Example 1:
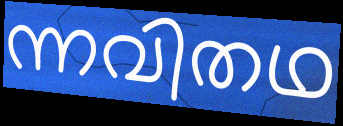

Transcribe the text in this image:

ന്നവിതഥ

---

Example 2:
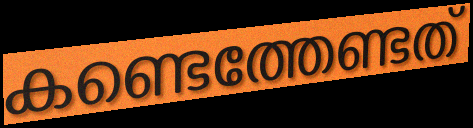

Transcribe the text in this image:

കണ്ടെത്തേണ്ടത്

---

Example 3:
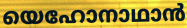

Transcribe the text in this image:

യെഹോനാഥാൻ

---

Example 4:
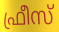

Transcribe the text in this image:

ഫ്രീസ്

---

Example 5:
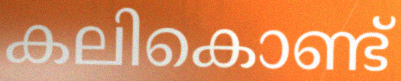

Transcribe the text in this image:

കലികൊണ്ട്